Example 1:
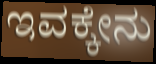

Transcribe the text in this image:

ಇವಕ್ಕೇನು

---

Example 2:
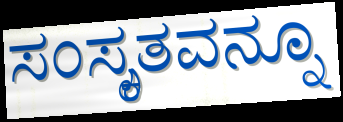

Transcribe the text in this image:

ಸಂಸ್ಕೃತವನ್ನೂ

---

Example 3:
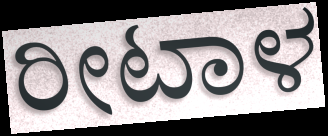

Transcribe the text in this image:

ರೀಟಾಳ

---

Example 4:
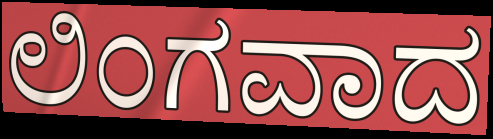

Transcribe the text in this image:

ಲಿಂಗವಾದ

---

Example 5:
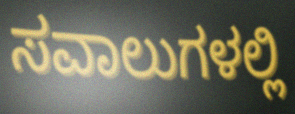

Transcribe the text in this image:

ಸವಾಲುಗಳಲ್ಲಿ